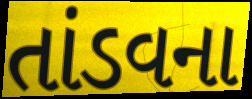
તાંડવના